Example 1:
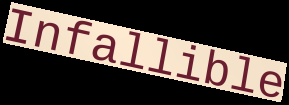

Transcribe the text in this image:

Infallible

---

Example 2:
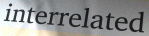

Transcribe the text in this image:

interrelated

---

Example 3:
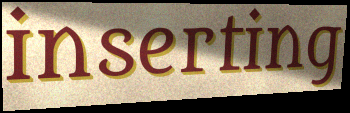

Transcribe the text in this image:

inserting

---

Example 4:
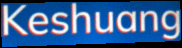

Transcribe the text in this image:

Keshuang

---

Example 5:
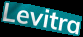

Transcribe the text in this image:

Levitra